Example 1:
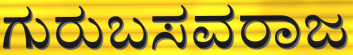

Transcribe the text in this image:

ಗುರುಬಸವರಾಜ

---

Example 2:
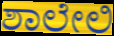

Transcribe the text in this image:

ಶಾಲೇಲಿ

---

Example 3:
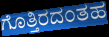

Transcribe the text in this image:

ಗೊತ್ತಿರದಂತಹ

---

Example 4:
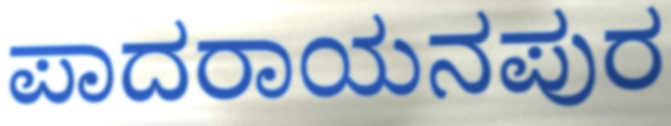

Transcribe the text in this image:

ಪಾದರಾಯನಪುರ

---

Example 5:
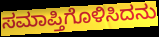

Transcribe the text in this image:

ಸಮಾಪ್ತಿಗೊಳಿಸಿದನು